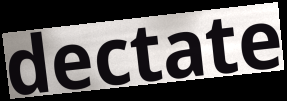
dectate